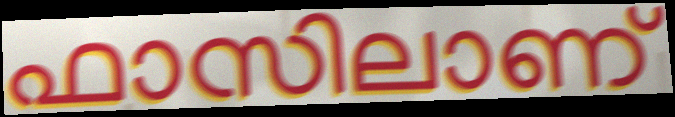
ഫാസിലാണ്